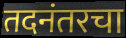
तदनंतरचा